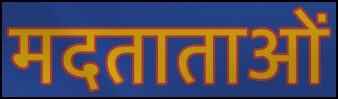
मदताताओं